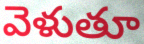
వెళుతూ